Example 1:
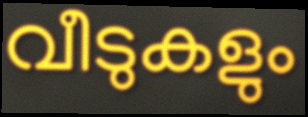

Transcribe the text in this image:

വീടുകളും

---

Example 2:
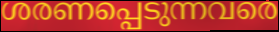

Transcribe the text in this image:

ശരണപ്പെടുന്നവരെ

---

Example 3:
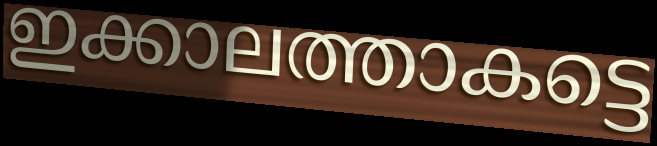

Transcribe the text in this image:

ഇക്കാലത്താകട്ടെ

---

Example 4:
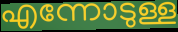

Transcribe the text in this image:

എന്നോടുള്ള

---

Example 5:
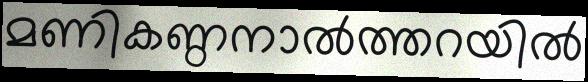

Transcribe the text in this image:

മണികണ്ഠനാൽത്തറയിൽ